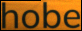
hobe